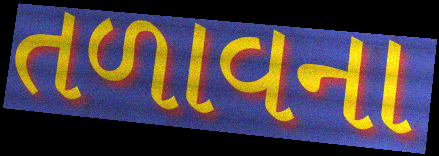
તળાવના